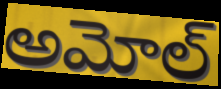
అమోల్